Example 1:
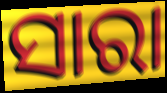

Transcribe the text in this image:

ସାରା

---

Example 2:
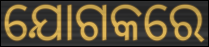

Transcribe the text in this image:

ଯୋଗକରେ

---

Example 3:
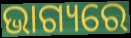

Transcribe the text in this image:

ଭାଗ୍ୟରେ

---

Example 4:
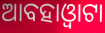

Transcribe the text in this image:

ଆବହାଓ୍ୱାଟା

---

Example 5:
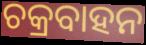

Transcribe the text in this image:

ଚକ୍ରବାହନ